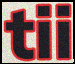
tii